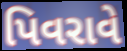
પિવરાવે